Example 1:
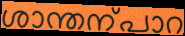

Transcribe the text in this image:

ശാന്തന്പാറ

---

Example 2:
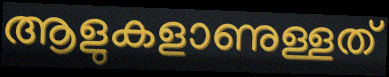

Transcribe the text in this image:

ആളുകളാണുള്ളത്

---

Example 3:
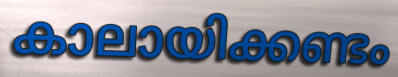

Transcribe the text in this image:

കാലായിക്കണ്ടം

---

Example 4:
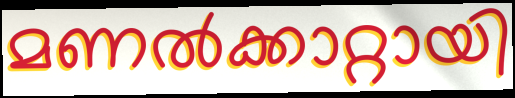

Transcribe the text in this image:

മണൽക്കാറ്റായി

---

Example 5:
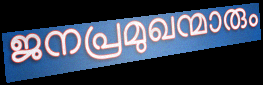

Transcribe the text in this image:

ജനപ്രമുഖന്മാരും